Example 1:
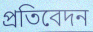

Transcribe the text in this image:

প্ৰতিবেদন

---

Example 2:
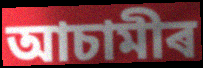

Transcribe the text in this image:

আচামীৰ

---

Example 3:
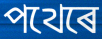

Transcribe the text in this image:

পথেৰে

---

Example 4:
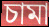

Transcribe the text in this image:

চামা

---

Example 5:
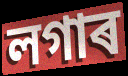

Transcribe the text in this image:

লগাৰ